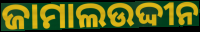
ଜାମାଲଉଦ୍ଦୀନ